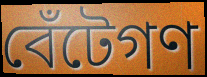
বেঁটেগণ